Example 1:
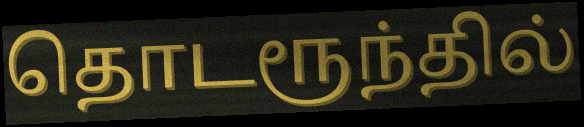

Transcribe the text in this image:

தொடரூந்தில்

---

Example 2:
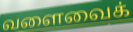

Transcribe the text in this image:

வளைவைக்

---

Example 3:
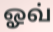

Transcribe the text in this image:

ஓவ்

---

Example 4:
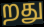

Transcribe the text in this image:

றது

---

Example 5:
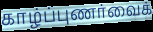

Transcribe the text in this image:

காழ்ப்புணர்வைக்